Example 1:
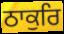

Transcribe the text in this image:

ਠਾਕੁਰਿ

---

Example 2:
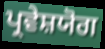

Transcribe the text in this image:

ਪ੍ਰਵੇਸ਼ਯੋਗ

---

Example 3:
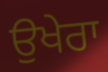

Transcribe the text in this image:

ਉਖੇਰਾ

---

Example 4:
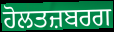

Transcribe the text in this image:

ਹੋਲਤਜ਼ਬਰਗ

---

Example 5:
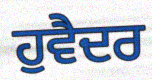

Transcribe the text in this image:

ਹੁਵੈਦਰ